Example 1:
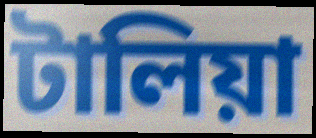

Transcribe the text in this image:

টালিয়া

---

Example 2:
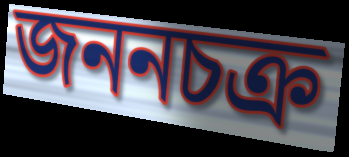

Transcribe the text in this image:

জননচক্র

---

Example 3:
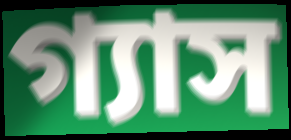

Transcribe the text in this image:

গ্যাস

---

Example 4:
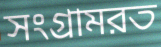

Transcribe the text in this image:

সংগ্রামরত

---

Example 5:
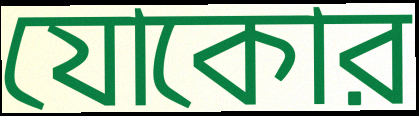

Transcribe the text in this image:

যোকোর